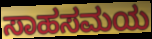
ಸಾಹಸಮಯ